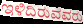
ಇಳಿದಿರುವವರು